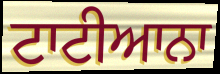
ਟਾਟੀਆਨਾ